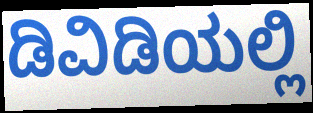
ಡಿವಿಡಿಯಲ್ಲಿ